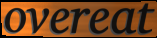
overeat